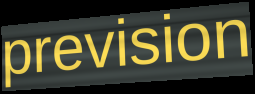
prevision